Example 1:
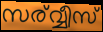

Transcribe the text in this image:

സര്വ്വീസ്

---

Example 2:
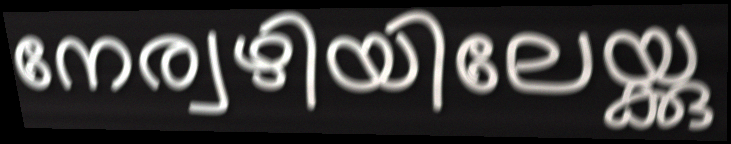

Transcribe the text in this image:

നേര്വഴിയിലേയ്ക്കു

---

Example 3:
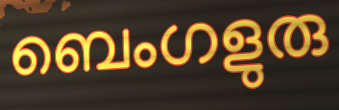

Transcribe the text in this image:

ബെംഗളുരു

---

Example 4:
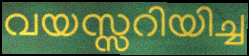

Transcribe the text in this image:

വയസ്സറിയിച്ച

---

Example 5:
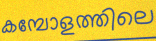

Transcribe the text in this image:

കമ്പോളത്തിലെ